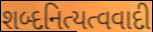
શબ્દનિત્યત્વવાદી